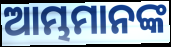
ଆମ୍ଭମାନଙ୍କ